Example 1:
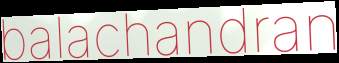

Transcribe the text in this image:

balachandran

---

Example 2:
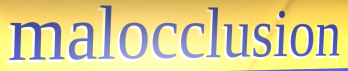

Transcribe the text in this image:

malocclusion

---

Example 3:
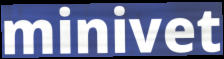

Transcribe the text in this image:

minivet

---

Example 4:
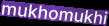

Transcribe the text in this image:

mukhomukhi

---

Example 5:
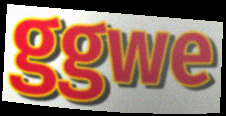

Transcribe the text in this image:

ggwe